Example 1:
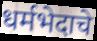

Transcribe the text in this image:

धर्मभेदाचे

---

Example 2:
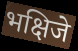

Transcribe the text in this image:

भक्षिजे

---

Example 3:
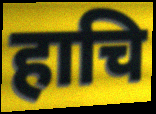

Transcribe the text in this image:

हाचि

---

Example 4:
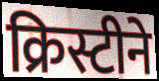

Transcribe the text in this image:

क्रिस्टीने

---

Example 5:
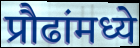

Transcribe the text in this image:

प्रौढांमध्ये